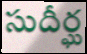
సుదీర్ఘ